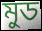
মুড